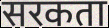
सरकता